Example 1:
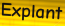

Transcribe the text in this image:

Explant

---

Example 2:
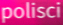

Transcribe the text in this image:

polisci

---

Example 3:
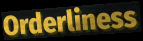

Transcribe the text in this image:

Orderliness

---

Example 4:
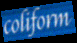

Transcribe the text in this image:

coliform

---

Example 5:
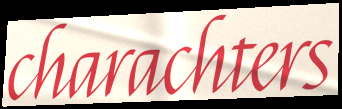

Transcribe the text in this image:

charachters